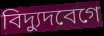
বিদ্যুদবেগে